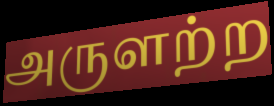
அருளற்ற